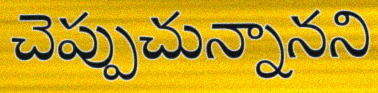
చెప్పుచున్నానని